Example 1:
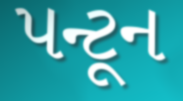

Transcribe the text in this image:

પન્ટૂન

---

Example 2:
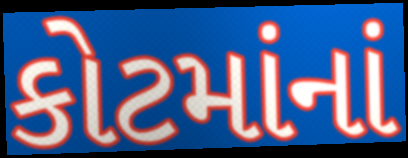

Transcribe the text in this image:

કોટમાંનાં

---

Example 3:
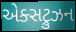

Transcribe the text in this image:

એક્સટ્રુઝન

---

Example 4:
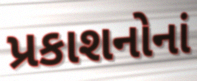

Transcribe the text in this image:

પ્રકાશનોનાં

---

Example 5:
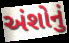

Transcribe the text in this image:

અંશોનું